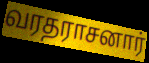
வரதராசனார்